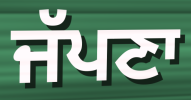
ਜੱਪਣਾ